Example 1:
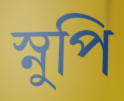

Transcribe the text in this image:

স্নুপি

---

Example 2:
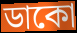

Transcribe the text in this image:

ডাকো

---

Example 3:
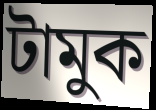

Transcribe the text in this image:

টামুক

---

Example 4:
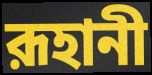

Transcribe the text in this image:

রূহানী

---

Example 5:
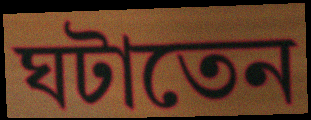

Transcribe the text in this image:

ঘটাতেন